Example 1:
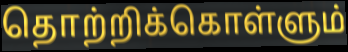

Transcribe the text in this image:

தொற்றிக்கொள்ளும்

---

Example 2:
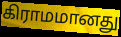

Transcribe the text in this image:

கிராமமானது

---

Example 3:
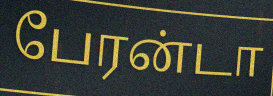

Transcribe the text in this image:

பேரன்டா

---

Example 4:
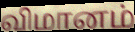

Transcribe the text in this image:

விமானம்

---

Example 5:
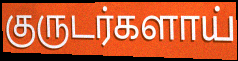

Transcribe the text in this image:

குருடர்களாய்